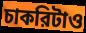
চাকরিটাও